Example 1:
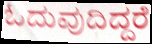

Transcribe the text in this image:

ಓದುವುದಿದ್ದರೆ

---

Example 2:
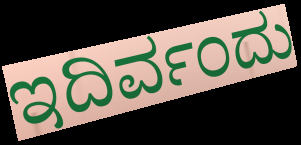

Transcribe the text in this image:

ಇದಿರ್ವಂದು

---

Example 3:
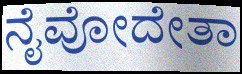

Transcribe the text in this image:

ನೈವೋದೇತಾ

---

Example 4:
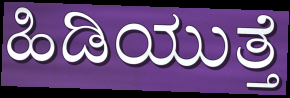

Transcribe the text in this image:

ಹಿಡಿಯುತ್ತೆ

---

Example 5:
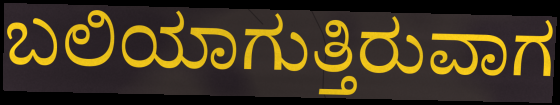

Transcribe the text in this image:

ಬಲಿಯಾಗುತ್ತಿರುವಾಗ